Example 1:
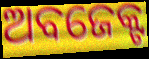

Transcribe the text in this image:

ଅବଜେକ୍ଟ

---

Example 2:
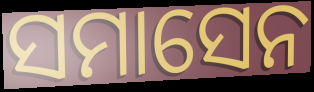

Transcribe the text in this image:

ସମାସେନ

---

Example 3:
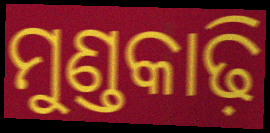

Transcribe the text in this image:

ମୁଣ୍ଡକାଢ଼ି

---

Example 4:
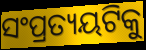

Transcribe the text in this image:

ସଂପ୍ରତ୍ୟୟଟିକୁ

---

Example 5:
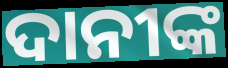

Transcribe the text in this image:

ଦାନୀଙ୍କ